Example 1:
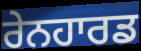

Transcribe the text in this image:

ਰੇਨਹਾਰਡ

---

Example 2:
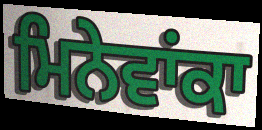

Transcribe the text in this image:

ਮਿਨੇਵਾਂਕਾ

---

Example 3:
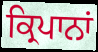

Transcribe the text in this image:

ਕ੍ਰਿਪਾਨਾਂ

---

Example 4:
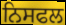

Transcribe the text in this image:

ਨਿਸਫਲ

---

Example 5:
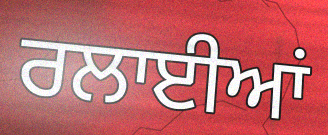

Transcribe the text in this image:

ਰਲਾਈਆਂ